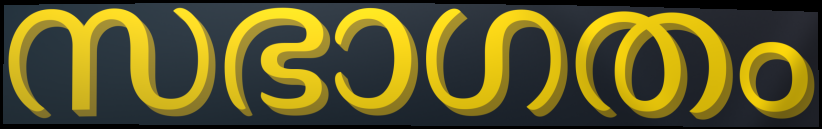
സഭാഗതം